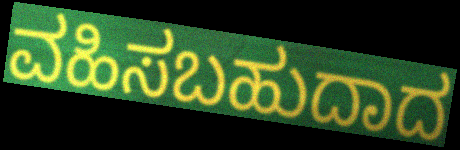
ವಹಿಸಬಹುದಾದ